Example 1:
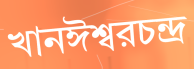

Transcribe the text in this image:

খানঈশ্বরচন্দ্র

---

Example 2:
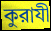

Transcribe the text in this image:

কুরাযী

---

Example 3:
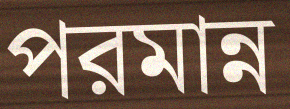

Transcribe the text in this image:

পরমান্ন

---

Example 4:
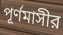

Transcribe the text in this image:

পূর্ণমাসীর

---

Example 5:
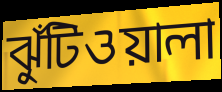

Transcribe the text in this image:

ঝুঁটিওয়ালা